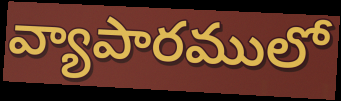
వ్యాపారములో